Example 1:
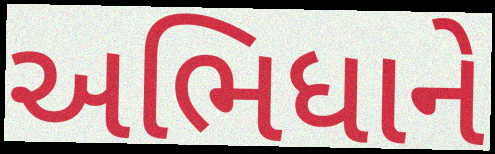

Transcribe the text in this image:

અભિધાને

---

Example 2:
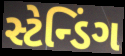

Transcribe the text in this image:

સ્ટેન્ડિંગ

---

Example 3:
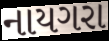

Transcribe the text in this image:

નાયગરા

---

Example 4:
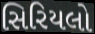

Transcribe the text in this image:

સિરિયલો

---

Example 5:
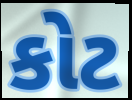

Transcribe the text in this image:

કોટ